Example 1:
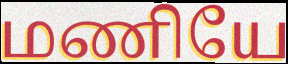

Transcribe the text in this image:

மணியே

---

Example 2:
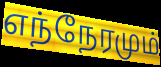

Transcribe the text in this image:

எந்நேரமும்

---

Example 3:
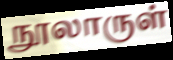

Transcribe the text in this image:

நூலாருள்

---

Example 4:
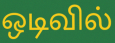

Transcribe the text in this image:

ஒடிவில்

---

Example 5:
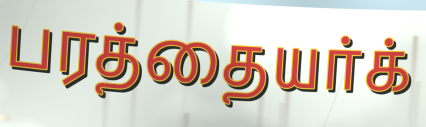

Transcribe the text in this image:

பரத்தையர்க்